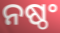
ନଷ୍ଠଂ